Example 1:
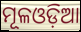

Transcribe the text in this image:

ମୂଳଓଡ଼ିଆ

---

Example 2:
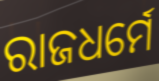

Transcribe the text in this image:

ରାଜଧର୍ମେ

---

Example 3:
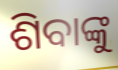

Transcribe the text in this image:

ଶିବାଙ୍କୁ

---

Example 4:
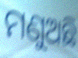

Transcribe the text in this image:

ମଣୁଅଛି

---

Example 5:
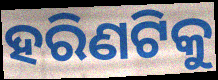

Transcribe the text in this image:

ହରିଣଟିକୁ